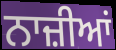
ਨਾਜ਼ੀਆਂ